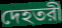
দেহতরী